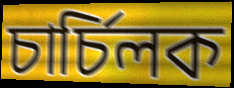
চাৰ্চিলক